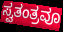
ಸ್ವತಂತ್ರವೂ